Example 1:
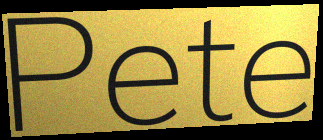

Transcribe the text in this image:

Pete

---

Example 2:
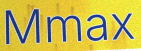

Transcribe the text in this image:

Mmax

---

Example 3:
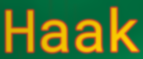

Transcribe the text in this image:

Haak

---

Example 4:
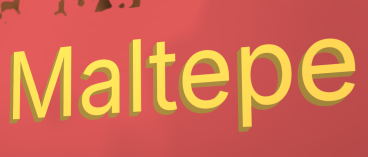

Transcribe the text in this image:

Maltepe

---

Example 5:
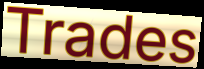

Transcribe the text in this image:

Trades